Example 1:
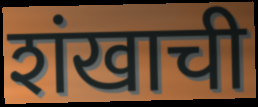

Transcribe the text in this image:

शंखाची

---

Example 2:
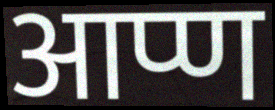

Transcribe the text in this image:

आप्ण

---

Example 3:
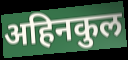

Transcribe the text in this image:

अहिनकुल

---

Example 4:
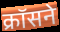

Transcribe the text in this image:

क्रॉसने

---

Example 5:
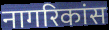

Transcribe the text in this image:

नागरिकांस